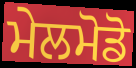
ਮੇਲਮੋਡੋ